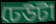
ঢেউটা